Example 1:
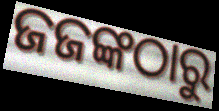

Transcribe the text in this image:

ଜଜଙ୍କଠାରୁ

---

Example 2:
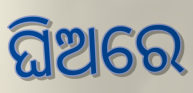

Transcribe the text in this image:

ଘିଅରେ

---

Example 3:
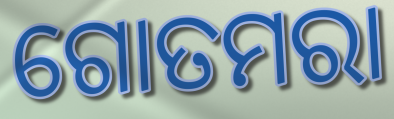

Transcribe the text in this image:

ଗୋତମରା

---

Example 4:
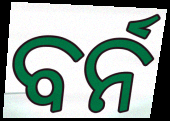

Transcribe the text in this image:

ବର୍ନ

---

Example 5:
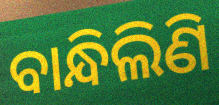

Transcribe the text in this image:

ବାନ୍ଧିଲିଣି